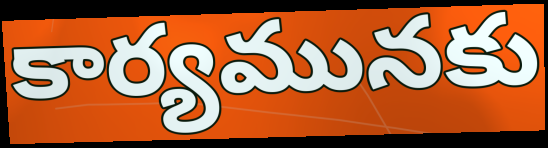
కార్యమునకు